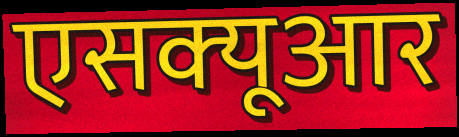
एसक्यूआर